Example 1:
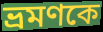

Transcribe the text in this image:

ভ্রমণকে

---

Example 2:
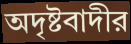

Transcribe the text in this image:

অদৃষ্টবাদীর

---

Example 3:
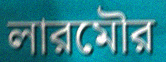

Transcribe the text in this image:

লারমৌর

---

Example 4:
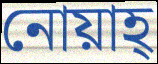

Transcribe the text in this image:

নোয়াহ্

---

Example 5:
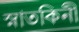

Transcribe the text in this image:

স্নাতকিনী